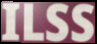
ILSS